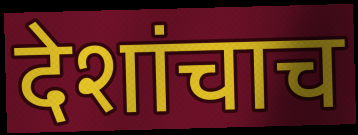
देशांचाच